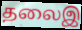
தலைஇ